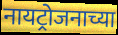
नायट्रोजनाच्या